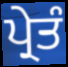
ਪ੍ਰੇਤੰ